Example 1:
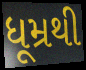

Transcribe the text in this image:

ધૂમ્રથી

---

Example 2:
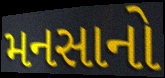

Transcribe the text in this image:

મનસાનો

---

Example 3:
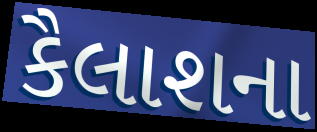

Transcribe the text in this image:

કૈલાશના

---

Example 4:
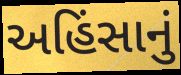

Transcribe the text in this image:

અહિંસાનું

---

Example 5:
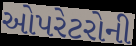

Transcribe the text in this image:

ઓપરેટરોની